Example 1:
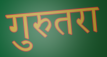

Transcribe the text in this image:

गुरुतरा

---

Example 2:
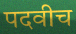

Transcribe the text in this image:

पदवीच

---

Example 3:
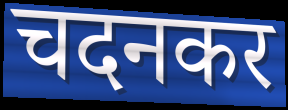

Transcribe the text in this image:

चदनकर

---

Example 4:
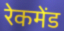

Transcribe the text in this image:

रेकमेंड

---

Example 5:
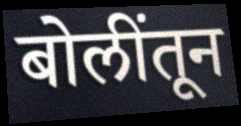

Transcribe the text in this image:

बोलींतून